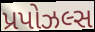
પ્રપોઝલ્સ